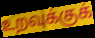
உறவுக்குக்